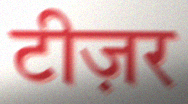
टीज़र